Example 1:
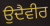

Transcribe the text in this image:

ਉਦੈਵੀਰ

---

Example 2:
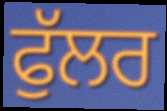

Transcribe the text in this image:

ਫੁੱਲਰ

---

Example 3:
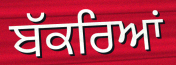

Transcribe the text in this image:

ਬੱਕਰਿਆਂ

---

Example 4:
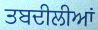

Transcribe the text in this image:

ਤਬਦੀਲੀਆਂ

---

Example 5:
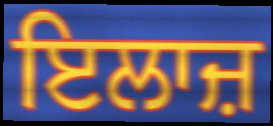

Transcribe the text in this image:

ਇਲਾਜ਼